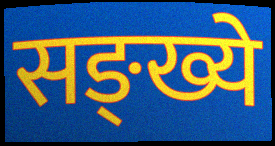
सङ्ख्ये